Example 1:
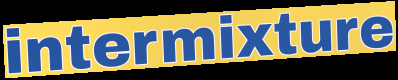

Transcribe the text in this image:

intermixture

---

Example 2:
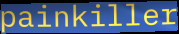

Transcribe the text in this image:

painkiller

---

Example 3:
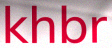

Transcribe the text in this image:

khbr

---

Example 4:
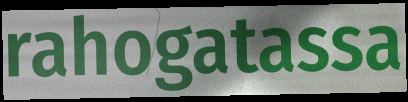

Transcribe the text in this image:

rahogatassa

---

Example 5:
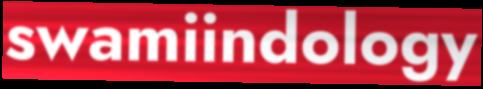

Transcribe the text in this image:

swamiindology